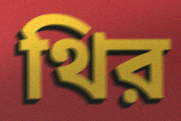
থির